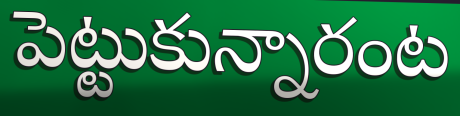
పెట్టుకున్నారంట